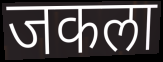
जकला